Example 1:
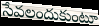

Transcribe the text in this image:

సేవలందుకుంటూ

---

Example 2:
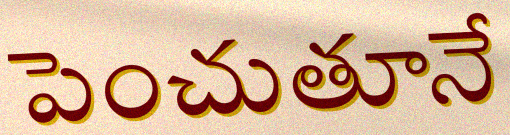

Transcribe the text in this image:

పెంచుతూనే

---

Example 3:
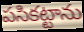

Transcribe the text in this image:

పసికట్టాను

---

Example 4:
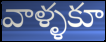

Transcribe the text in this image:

వాళ్ళకూ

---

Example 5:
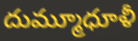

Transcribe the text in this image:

దుమ్మూధూళీ